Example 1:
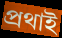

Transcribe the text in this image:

প্ৰথাই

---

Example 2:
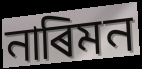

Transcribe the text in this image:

নাৰিমন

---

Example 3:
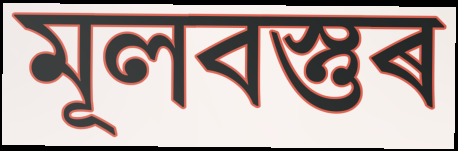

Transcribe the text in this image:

মূলবস্তুৰ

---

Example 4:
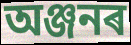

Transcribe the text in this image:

অঞ্জনৰ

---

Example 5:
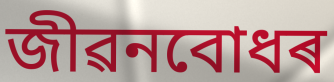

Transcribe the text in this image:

জীৱনবোধৰ